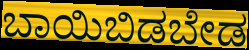
ಬಾಯಿಬಿಡಬೇಡ